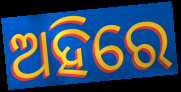
ଅହିରେ